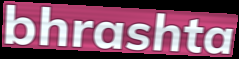
bhrashta